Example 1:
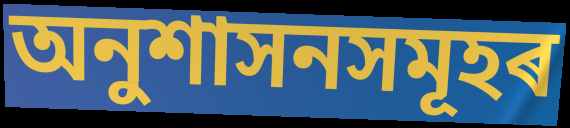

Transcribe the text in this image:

অনুশাসনসমূহৰ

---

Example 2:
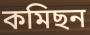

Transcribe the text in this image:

কমিছন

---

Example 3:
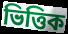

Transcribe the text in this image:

ভিত্তিক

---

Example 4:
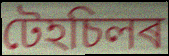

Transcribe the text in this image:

টেহচিলৰ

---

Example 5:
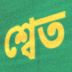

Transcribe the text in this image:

শ্বেত